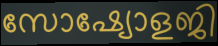
സോഷ്യോളജി